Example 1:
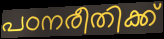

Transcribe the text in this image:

പഠനരീതിക്ക്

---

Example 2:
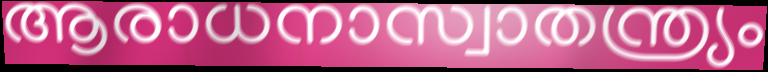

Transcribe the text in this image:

ആരാധനാസ്വാതന്ത്ര്യം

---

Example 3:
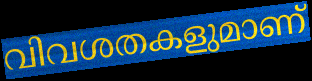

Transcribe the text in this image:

വിവശതകളുമാണ്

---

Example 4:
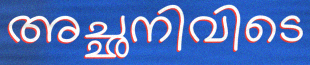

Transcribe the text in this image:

അച്ഛനിവിടെ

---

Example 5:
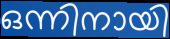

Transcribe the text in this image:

ഒന്നിനായി